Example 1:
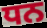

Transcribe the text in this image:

ਧਨ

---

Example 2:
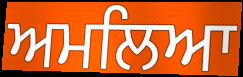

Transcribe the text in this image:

ਅਮਲਿਆ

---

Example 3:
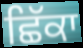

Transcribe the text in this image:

ਛਿੱਕਾ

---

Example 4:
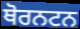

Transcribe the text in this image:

ਥੋਰਨਟਨ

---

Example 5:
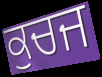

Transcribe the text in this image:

ਕੁਚਜ